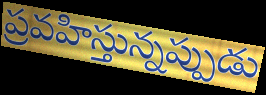
ప్రవహిస్తున్నప్పుడు